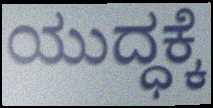
ಯುದ್ಧಕ್ಕೆ